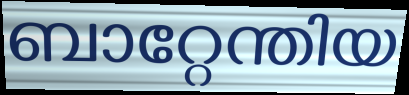
ബാറ്റേന്തിയ